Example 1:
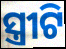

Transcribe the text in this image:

ସ୍ତ୍ରୀଟି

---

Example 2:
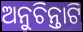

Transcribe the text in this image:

ଅନୁଚିନ୍ତାଟି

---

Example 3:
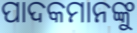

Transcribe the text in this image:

ପାଦକମାନଙ୍କୁ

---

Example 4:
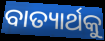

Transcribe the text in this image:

ବାତ୍ୟାର୍ଥକୁ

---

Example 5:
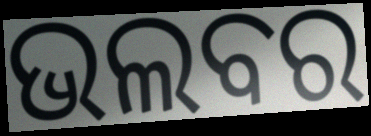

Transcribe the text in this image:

ଭଲବର